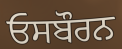
ਓਸਬੌਰਨ